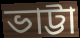
ভাট্টা